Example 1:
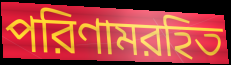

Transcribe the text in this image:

পরিণামরহিত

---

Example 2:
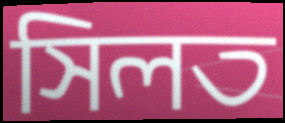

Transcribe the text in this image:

সিলত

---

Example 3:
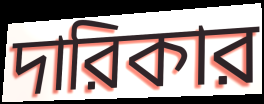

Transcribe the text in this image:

দারিকার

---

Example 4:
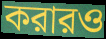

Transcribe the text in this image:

করারও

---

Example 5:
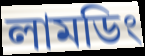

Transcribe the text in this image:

লামডিং